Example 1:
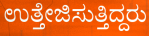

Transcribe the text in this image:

ಉತ್ತೇಜಿಸುತ್ತಿದ್ದರು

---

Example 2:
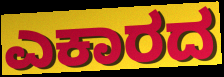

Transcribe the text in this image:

ಎಕಾರದ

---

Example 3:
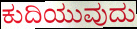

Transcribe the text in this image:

ಕುದಿಯುವುದು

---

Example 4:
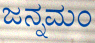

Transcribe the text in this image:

ಜನ್ನಮಂ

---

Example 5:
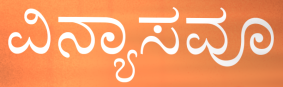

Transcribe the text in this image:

ವಿನ್ಯಾಸವೂ